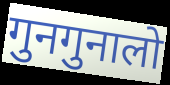
गुनगुनालो